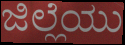
ಜಿಲ್ಲೆಯು